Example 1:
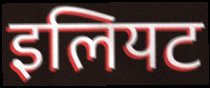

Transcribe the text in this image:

इलियट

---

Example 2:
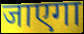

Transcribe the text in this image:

जाएगा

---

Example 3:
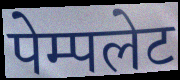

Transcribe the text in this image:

पेम्पलेट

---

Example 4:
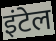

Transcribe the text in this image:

इंटेल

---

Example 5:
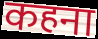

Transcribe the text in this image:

कहना